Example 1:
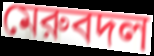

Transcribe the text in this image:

মেরুবদল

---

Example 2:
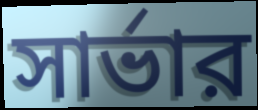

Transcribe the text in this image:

সার্ভার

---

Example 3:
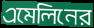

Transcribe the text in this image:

এমেলিনের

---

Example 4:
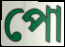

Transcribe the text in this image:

পো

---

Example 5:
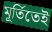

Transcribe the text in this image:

মূর্তিতেই